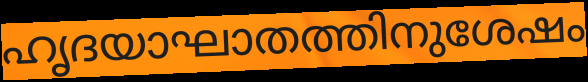
ഹൃദയാഘാതത്തിനുശേഷം